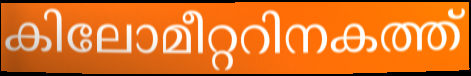
കിലോമീറ്ററിനകത്ത്